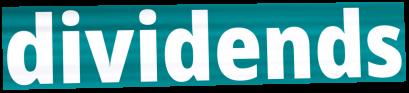
dividends